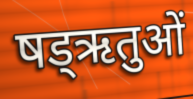
षड्ऋतुओं